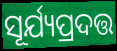
ସୂର୍ଯ୍ୟପ୍ରଦତ୍ତ